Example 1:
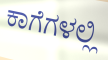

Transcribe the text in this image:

ಕಾಗೆಗಳಲ್ಲಿ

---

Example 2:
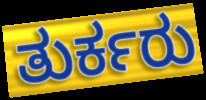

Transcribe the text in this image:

ತುರ್ಕರು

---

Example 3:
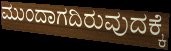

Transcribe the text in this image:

ಮುಂದಾಗದಿರುವುದಕ್ಕೆ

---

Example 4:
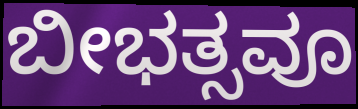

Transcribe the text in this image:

ಬೀಭತ್ಸವೂ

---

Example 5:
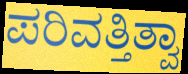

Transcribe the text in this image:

ಪರಿವತ್ತಿತ್ವಾ